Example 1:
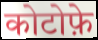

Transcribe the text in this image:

कोटोफ़े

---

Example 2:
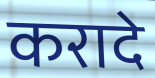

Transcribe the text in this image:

करादे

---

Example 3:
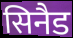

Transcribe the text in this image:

सिनैड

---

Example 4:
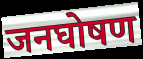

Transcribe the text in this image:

जनघोषण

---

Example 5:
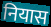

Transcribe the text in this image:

नियास